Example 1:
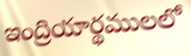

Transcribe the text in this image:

ఇంద్రియార్థములలో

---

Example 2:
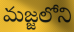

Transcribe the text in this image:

మజ్జలోని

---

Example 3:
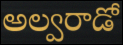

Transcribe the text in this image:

అల్వరాడో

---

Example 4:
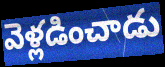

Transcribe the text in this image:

వెళ్లడించాడు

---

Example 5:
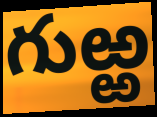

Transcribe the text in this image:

గుఱ్ఱ